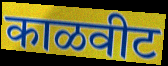
काळवीट